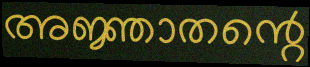
അജ്ഞാതന്റെ